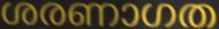
ശരണാഗത